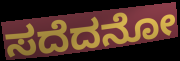
ಸದೆದನೋ